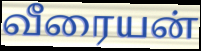
வீரையன்